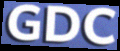
GDC